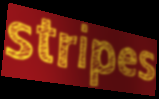
stripes